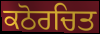
ਕਠੋਰਚਿਤ